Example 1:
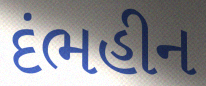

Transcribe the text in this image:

દંભહીન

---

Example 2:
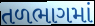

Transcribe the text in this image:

તળભાગમાં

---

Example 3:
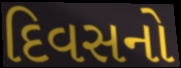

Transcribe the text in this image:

દિવસનો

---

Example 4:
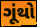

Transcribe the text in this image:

ગૂંથો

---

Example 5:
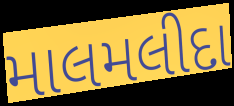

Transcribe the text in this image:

માલમલીદા